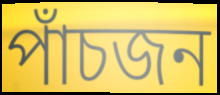
পাঁচজন